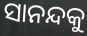
ସାନନ୍ଦକୁ